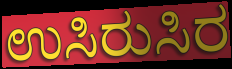
ಉಸಿರುಸಿರ